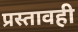
प्रस्तावही